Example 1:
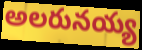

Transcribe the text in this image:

అలరునయ్య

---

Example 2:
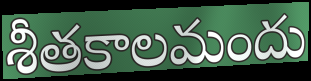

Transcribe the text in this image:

శీతకాలమందు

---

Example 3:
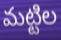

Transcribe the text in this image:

మట్టిల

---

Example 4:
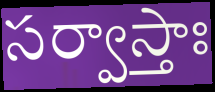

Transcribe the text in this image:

సర్వాస్తాః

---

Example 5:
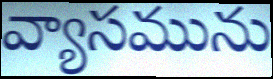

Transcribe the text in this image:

వ్యాసమును